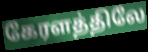
கேரளத்திலே